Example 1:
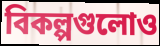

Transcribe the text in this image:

বিকল্পগুলোও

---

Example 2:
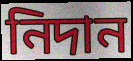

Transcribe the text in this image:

নিদান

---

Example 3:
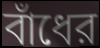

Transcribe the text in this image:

বাঁধের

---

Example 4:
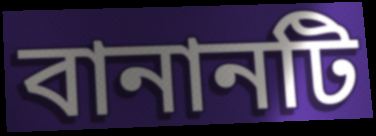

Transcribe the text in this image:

বানানটি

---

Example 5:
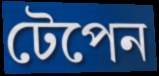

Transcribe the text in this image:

টেপেন